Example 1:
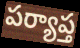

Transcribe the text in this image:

పర్యాప్త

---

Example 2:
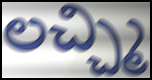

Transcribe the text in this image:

లచ్చ్మి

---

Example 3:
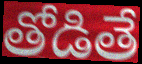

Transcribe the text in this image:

తోడితే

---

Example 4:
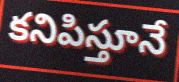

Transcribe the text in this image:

కనిపిస్తూనే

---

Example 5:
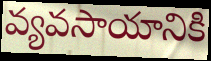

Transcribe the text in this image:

వ్యవసాయానికి